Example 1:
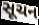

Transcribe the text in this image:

સૂચન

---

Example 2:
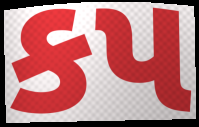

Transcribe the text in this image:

કપ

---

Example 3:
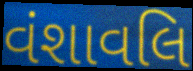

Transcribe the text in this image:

વંશાવલિ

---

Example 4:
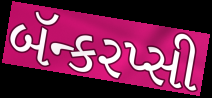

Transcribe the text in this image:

બૅન્કરપ્સી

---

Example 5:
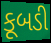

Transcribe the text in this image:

કૂબડી